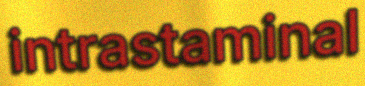
intrastaminal